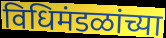
विधिमंडळांच्या